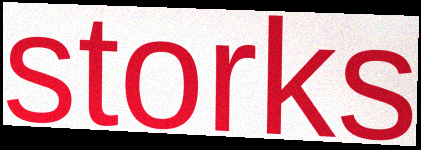
storks